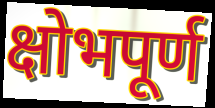
क्षोभपूर्ण